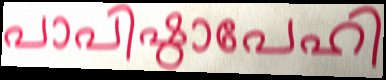
പാപിഷ്ഠാപേഹി